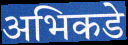
अभिकडे